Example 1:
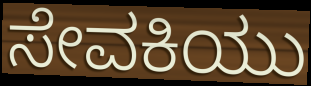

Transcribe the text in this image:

ಸೇವಕಿಯು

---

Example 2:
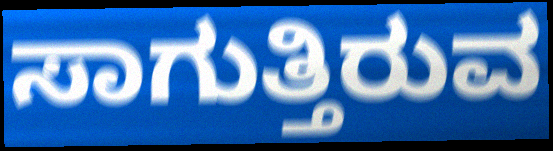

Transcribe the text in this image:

ಸಾಗುತ್ತಿರುವ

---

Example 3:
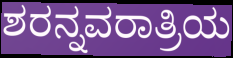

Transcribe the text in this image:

ಶರನ್ನವರಾತ್ರಿಯ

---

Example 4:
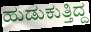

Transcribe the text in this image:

ಹುಡುಕುತ್ತಿದ್ದ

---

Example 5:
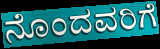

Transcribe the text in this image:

ನೊಂದವರಿಗೆ